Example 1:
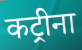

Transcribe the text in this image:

कट्रीना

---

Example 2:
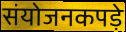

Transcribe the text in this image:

संयोजनकपड़े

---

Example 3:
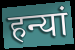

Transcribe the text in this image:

हन्यां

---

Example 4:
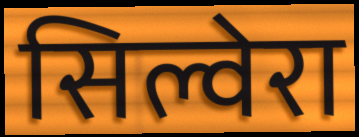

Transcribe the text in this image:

सिल्वेरा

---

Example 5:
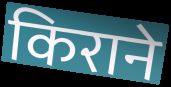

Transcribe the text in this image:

किराने